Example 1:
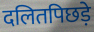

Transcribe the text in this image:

दलितपिछड़े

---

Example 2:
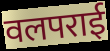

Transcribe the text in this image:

वलपराई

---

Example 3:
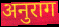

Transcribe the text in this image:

अनुराग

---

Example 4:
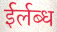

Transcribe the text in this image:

ईर्लब्ध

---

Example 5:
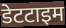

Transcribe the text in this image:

डेटटाइम